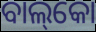
ବାଲ୍‌କୋ